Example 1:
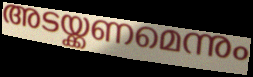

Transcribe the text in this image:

അടയ്ക്കണമെന്നും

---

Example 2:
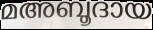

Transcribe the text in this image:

മഅബൂദായ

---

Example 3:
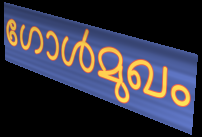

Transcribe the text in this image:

ഗോൾമുഖം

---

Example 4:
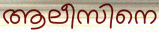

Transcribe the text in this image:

ആലീസിനെ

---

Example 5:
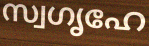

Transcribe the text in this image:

സ്വഗൃഹേ